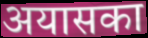
अयासका